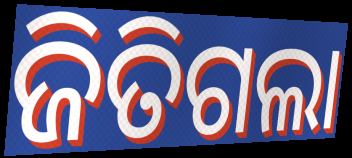
ଜିତିଗଲା